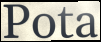
Pota